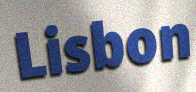
Lisbon